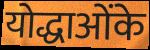
योद्धाओंके